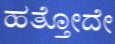
ಹತ್ತೋದೇ